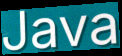
Java